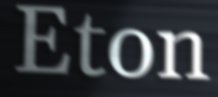
Eton